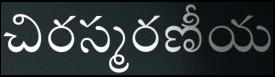
చిరస్మరణీయ